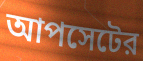
আপসেটের